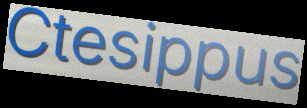
Ctesippus